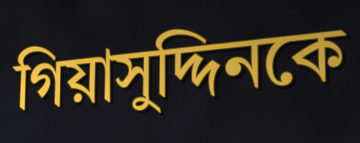
গিয়াসুদ্দিনকে